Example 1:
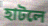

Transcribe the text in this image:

হাটলে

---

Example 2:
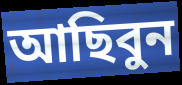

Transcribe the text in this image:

আছিবুন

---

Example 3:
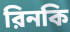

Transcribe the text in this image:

রিনকি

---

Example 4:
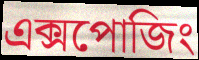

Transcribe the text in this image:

এক্সপোজিং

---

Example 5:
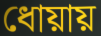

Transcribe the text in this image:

ধোয়ায়